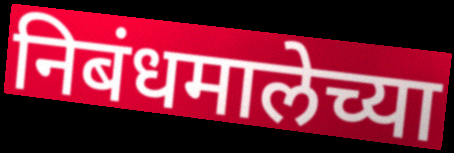
निबंधमालेच्या